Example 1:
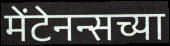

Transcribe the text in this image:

मेंटेनन्सच्या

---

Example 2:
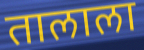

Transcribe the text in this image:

तालाला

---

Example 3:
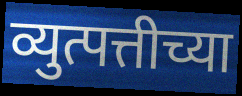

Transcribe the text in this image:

व्युत्पत्तीच्या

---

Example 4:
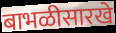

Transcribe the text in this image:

बाभळीसारखे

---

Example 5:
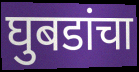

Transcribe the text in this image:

घुबडांचा